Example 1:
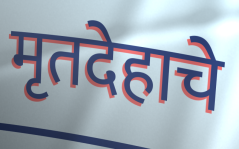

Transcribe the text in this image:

मृतदेहाचे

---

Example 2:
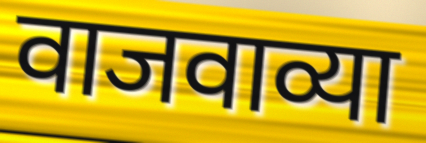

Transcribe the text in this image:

वाजवाव्या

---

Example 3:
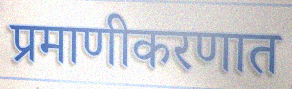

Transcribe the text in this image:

प्रमाणीकरणात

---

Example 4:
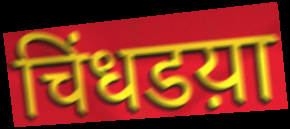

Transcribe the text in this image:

चिंधडय़ा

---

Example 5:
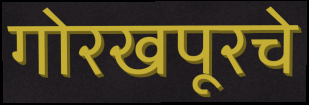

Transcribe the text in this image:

गोरखपूरचे